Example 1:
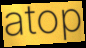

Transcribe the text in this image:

atop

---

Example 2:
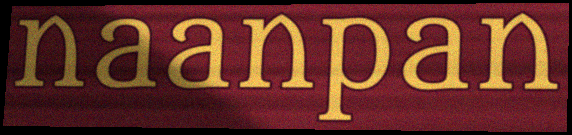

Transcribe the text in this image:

naanpan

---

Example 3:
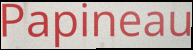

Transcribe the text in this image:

Papineau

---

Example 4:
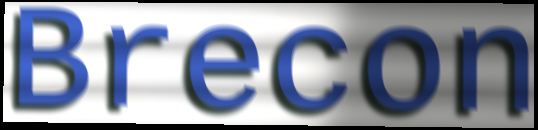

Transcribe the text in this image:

Brecon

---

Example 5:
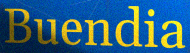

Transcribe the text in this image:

Buendia